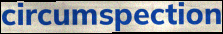
circumspection